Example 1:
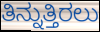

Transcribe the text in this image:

ತಿನ್ನುತ್ತಿರಲು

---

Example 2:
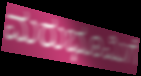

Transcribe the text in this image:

ಮರುಭೂಮಿಗೆ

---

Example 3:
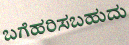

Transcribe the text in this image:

ಬಗೆಹರಿಸಬಹುದು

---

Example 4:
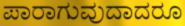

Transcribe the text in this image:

ಪಾರಾಗುವುದಾದರೂ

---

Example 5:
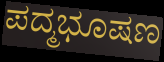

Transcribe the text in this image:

ಪದ್ಮಭೂಷಣ